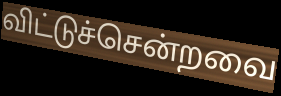
விட்டுச்சென்றவை